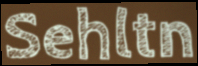
Sehltn